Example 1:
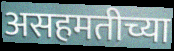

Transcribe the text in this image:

असहमतीच्या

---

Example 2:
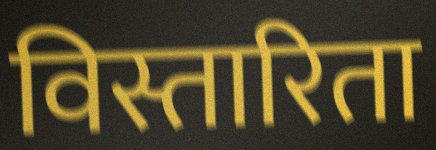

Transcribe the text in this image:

विस्तारिता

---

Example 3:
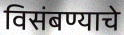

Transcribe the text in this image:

विसंबण्याचे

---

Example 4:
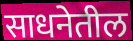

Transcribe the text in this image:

साधनेतील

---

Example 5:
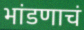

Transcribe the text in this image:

भांडणाचं